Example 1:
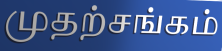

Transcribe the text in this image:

முதற்சங்கம்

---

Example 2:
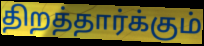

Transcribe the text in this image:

திறத்தார்க்கும்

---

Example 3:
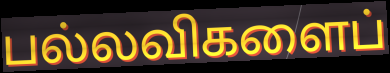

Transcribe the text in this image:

பல்லவிகளைப்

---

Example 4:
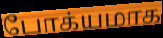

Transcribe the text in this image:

போக்யமாக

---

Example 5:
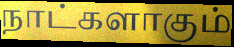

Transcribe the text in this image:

நாட்களாகும்